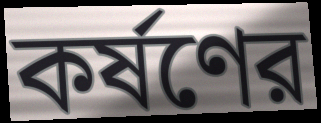
কর্ষণের